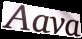
Aava